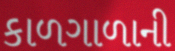
કાળગાળાની